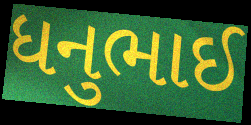
ધનુભાઈ